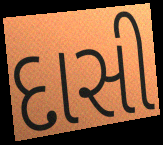
દાસી